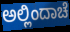
ಅಲ್ಲಿಂದಾಚೆ